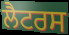
ਲੈਟਰਸ